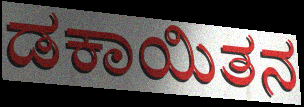
ಡಕಾಯಿತನ